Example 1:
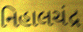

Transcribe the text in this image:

નિહાલચંદ્ર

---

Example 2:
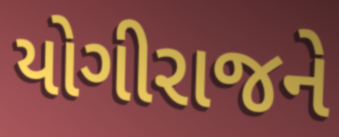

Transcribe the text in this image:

યોગીરાજને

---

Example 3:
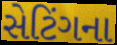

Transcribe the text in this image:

સેટિંગના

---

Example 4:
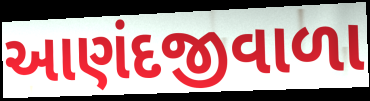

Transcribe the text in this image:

આણંદજીવાળા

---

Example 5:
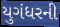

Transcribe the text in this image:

યુગંધરની